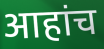
आहांच